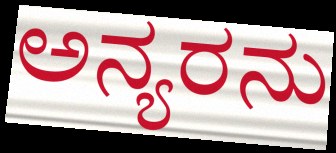
ಅನ್ಯರನು